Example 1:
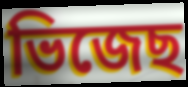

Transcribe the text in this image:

ভিজেছ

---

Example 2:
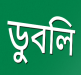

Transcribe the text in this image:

ডুবলি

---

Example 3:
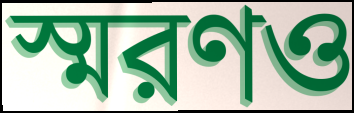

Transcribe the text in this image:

স্মরণও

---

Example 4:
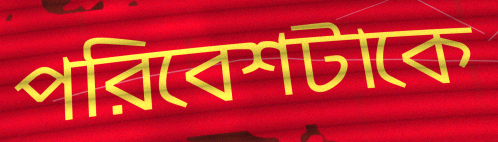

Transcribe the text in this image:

পরিবেশটাকে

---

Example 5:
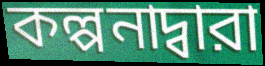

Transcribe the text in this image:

কল্পনাদ্বারা